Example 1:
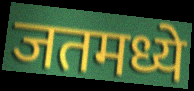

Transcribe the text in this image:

जतमध्ये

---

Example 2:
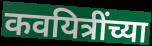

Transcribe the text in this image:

कवयित्रींच्या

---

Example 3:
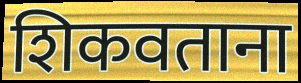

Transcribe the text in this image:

शिकवताना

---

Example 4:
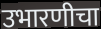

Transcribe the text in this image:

उभारणीचा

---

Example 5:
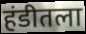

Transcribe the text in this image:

हंडीतला